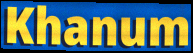
Khanum